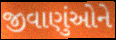
જીવાણુંઓને